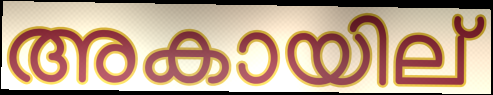
അകായില്